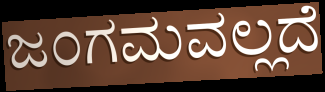
ಜಂಗಮವಲ್ಲದೆ